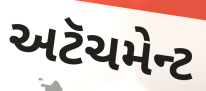
અટૅચમેન્ટ